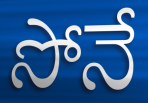
సోనే